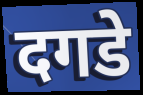
दगडे